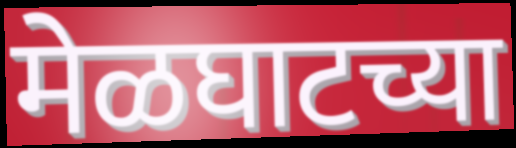
मेळघाटच्या